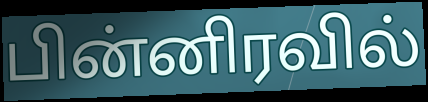
பின்னிரவில்